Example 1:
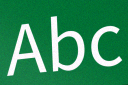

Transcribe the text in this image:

Abc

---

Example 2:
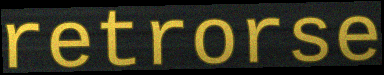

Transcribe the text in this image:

retrorse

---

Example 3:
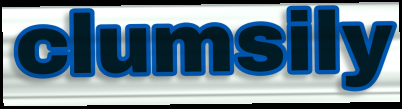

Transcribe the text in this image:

clumsily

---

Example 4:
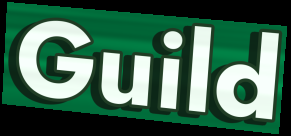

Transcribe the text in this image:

Guild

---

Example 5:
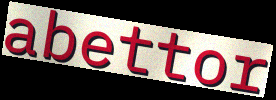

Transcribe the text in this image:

abettor